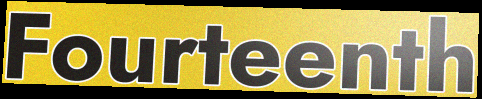
Fourteenth